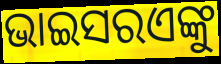
ଭାଇସରଏଙ୍କୁ